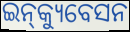
ଇନ୍‌କ୍ୟୁବେସନ